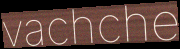
vachche